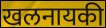
खलनायकी